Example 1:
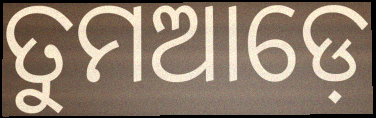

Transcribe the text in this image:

ତୁମଆଡ଼େ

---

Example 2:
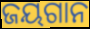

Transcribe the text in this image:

ଜୟଗାନ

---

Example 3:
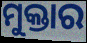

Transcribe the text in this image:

ମୁକ୍ତାର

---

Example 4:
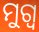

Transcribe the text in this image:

ମୁଗ୍ୱ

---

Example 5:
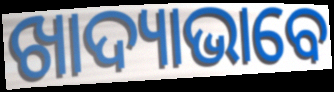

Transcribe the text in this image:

ଖାଦ୍ୟାଭାବେ